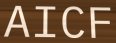
AICF